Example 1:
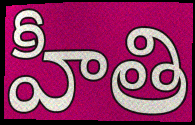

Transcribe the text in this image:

హీతి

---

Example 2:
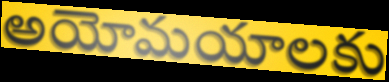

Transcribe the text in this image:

అయోమయాలకు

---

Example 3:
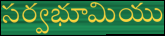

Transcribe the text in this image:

సర్వభూమియు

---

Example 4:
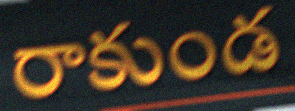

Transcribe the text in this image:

రాకుండ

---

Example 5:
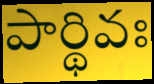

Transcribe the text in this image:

పార్థివః